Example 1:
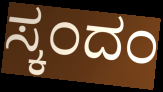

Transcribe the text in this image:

ಸ್ಕಂದಂ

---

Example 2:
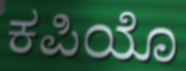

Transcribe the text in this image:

ಕಪಿಯೊ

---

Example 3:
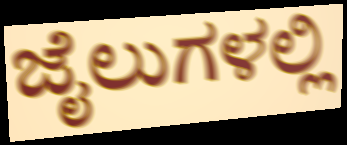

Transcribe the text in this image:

ಜೈಲುಗಳಲ್ಲಿ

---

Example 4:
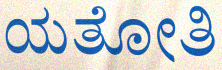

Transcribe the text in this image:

ಯತೋತಿ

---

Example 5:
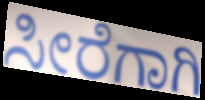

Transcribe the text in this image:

ಸೀರೆಗಾಗಿ